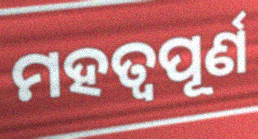
ମହତ୍ୱପୂର୍ଣ